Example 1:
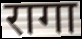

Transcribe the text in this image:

रागा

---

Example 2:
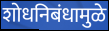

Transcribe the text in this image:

शोधनिबंधामुळे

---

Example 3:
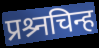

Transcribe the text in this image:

प्रश्र्नचिन्ह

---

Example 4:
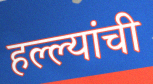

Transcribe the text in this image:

हल्ल्यांची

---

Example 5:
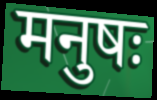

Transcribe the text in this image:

मनुषः